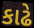
કાઢે